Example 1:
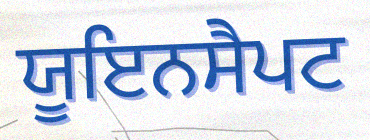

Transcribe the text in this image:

ਯੂਇਨਸੈਪਟ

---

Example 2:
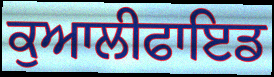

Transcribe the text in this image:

ਕੁਆਲੀਫਾਇਡ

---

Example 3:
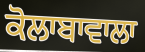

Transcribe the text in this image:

ਕੋਲਾਬਾਵਾਲਾ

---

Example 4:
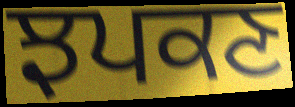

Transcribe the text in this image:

ਝਪਕਣ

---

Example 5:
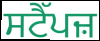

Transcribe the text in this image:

ਸਟੈੱਪਜ਼